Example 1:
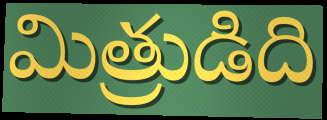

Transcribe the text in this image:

మిత్రుడిది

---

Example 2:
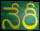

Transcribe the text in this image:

నేరీ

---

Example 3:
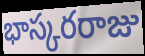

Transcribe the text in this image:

భాస్కరరాజు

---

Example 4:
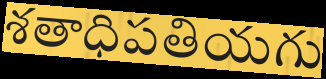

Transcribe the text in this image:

శతాధిపతియగు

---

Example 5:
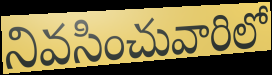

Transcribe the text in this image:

నివసించువారిలో